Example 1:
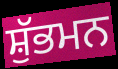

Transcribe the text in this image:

ਸ਼ੁੱਭਮਨ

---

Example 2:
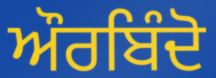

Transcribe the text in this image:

ਔਰਬਿੰਦੋ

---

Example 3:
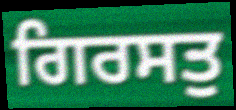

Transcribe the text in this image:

ਗਿਰਸਤੁ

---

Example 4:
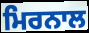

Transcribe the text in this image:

ਮਿਰਨਾਲ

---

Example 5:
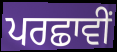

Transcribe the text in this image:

ਪਰਛਾਵੀਂ